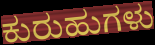
ಕುರುಹುಗಳು